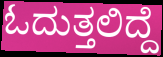
ಓದುತ್ತಲಿದ್ದೆ